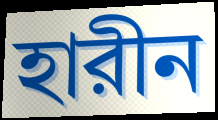
হারীন